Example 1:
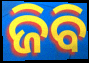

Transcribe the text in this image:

ଜିବି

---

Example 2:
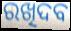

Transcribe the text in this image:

ରଖିଦବ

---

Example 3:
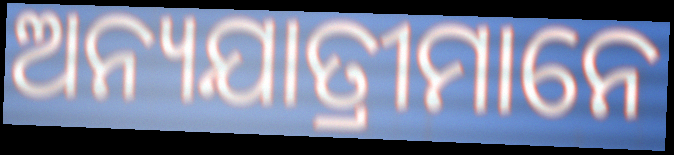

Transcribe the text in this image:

ଅନ୍ୟଯାତ୍ରୀମାନେ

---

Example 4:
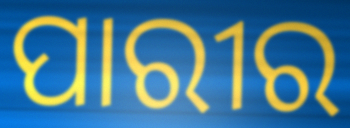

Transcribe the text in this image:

ପାରୀର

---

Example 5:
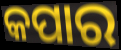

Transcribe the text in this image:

କପାର